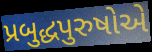
પ્રબુદ્ધપુરુષોએ